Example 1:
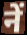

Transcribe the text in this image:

नें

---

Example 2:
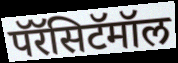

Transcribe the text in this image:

पॅरॅसिटॅमॉल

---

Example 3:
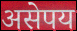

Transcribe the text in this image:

असेपय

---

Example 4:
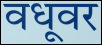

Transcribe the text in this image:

वधूवर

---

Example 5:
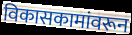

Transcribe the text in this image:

विकासकामांवरून